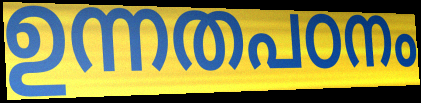
ഉന്നതപഠനം